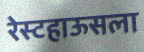
रेस्टहाऊसला